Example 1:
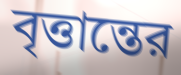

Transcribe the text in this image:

বৃত্তান্তের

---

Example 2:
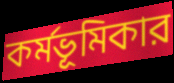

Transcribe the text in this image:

কর্মভূমিকার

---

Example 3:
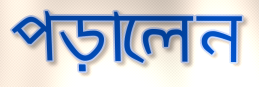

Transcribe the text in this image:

পড়ালেন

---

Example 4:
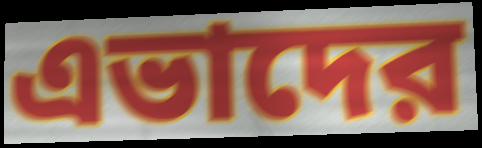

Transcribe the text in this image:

এভাদের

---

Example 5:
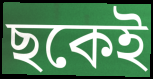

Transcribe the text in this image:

ছকেই